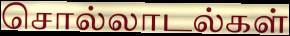
சொல்லாடல்கள்